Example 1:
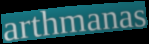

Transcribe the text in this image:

arthmanas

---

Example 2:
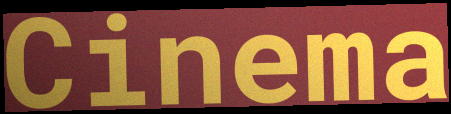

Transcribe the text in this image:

Cinema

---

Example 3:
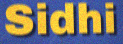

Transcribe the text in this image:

Sidhi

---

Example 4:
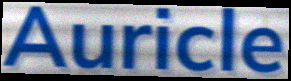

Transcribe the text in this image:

Auricle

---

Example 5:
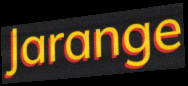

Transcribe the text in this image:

Jarange